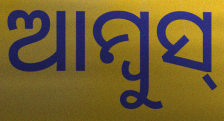
ଆମ୍ବୁସ୍